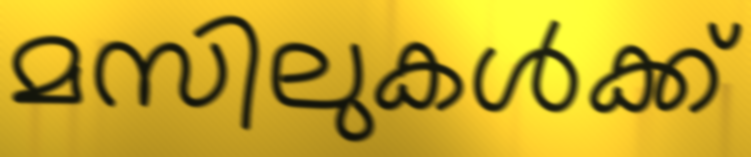
മസിലുകൾക്ക്